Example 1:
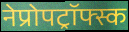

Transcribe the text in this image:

नेप्रोपट्रॉफ्स्क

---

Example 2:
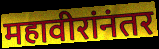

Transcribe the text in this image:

महावीरांनंतर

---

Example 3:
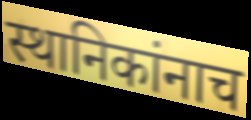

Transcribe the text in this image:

स्थानिकांनाच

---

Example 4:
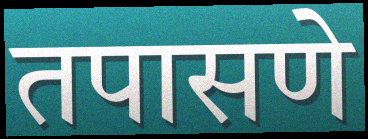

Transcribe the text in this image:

तपासणे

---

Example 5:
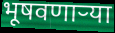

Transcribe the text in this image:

भूषवणाऱ्या